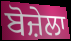
ਬੋਜ਼ੇਲਾ